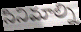
సినిమాల్ని